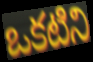
ఒకటిని